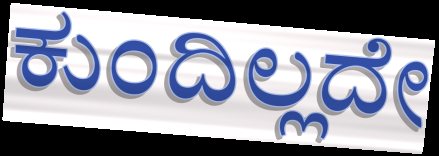
ಕುಂದಿಲ್ಲದೇ